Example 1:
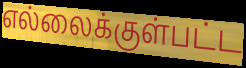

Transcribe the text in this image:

எல்லைக்குள்பட்ட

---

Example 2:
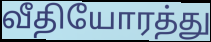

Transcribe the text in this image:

வீதியோரத்து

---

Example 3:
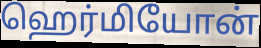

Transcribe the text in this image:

ஹெர்மியோன்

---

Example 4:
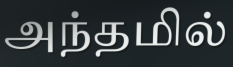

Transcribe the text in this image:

அந்தமில்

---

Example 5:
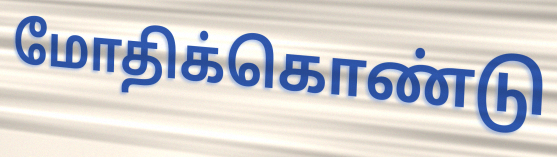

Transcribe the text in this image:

மோதிக்கொண்டு